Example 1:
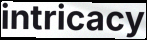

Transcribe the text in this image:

intricacy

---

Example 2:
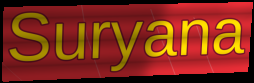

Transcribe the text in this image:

Suryana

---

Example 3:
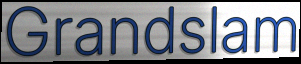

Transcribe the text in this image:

Grandslam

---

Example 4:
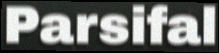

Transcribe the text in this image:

Parsifal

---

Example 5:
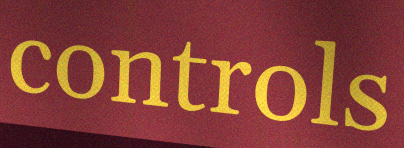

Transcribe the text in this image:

controls